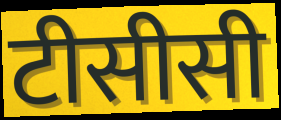
टीसीसी